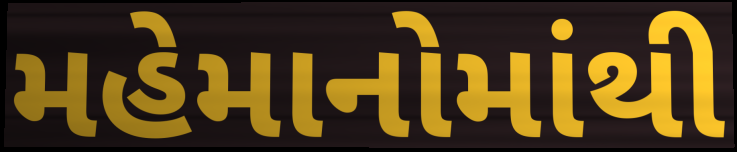
મહેમાનોમાંથી